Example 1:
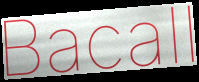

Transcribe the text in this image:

Bacall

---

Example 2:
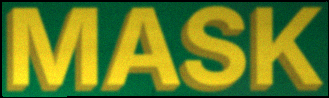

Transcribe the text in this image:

MASK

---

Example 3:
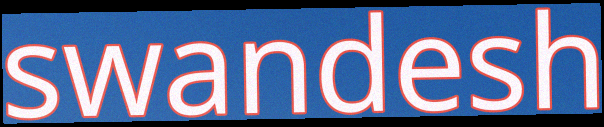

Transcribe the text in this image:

swandesh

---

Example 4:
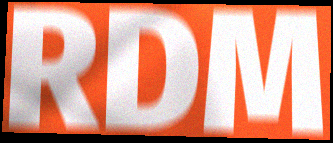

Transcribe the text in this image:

RDM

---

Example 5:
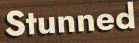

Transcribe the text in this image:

Stunned